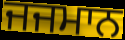
ਜਜਮਾਨ